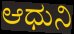
ಆಧುನಿ